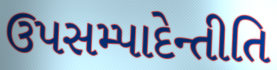
ઉપસમ્પાદેન્તીતિ